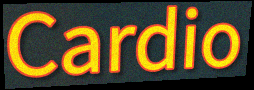
Cardio